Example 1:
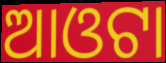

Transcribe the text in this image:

ଆଓଟା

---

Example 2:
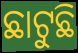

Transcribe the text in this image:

ଛାଟୁଛି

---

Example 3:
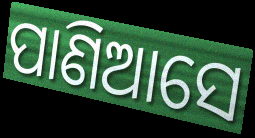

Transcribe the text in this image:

ପାଣିଆସେ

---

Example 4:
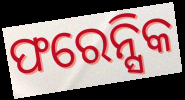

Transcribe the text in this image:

ଫରେନ୍ସିକ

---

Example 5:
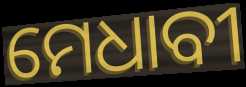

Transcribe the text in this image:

ମେଧାବୀ